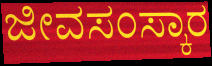
ಜೀವಸಂಸ್ಕಾರ